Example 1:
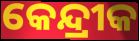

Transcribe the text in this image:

କେନ୍ଦ୍ରୀକ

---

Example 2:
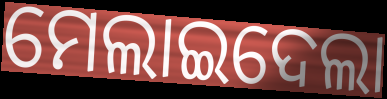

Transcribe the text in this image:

ମେଲାଇଦେଲା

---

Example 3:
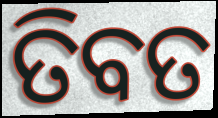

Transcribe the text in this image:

ତିବତ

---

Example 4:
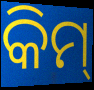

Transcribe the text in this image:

କିମ୍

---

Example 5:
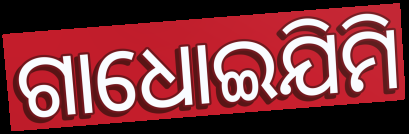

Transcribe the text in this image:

ଗାଧୋଇଯିମି